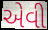
એવી